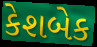
કેશબેક